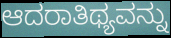
ಆದರಾತಿಥ್ಯವನ್ನು